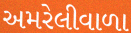
અમરેલીવાળા